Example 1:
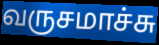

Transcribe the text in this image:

வருசமாச்சு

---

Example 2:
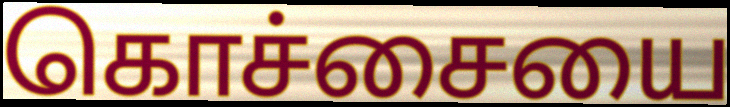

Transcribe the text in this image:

கொச்சையை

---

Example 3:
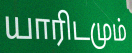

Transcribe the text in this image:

யாரிடமும்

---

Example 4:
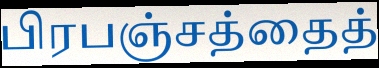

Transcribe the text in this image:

பிரபஞ்சத்தைத்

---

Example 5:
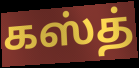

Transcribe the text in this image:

கஸ்த்